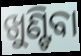
ଖୁଣ୍ଟିବା